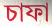
চাফা